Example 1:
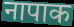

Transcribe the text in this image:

नापाक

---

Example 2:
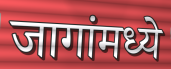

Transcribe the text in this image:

जागांमध्ये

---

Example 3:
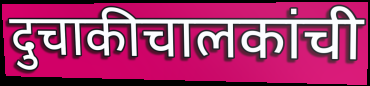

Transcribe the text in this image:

दुचाकीचालकांची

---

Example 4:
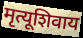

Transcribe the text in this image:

मृत्यूशिवाय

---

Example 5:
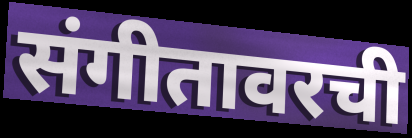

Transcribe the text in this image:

संगीतावरची